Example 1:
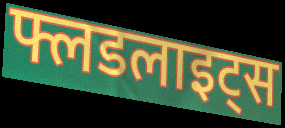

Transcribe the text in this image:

फ्लडलाइट्स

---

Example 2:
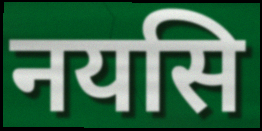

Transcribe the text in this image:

नयसि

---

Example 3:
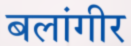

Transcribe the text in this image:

बलांगीर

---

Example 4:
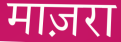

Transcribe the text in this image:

माज़रा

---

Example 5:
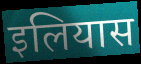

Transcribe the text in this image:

इलियास